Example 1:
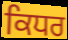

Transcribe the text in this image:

ਕਿਧਰ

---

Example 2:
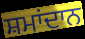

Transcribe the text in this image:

ਸ਼ਮਾਂਦਾਨ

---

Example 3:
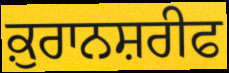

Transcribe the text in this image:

ਕ਼ੁਰਾਨਸ਼ਰੀਫ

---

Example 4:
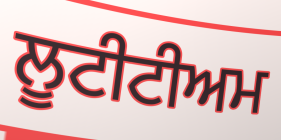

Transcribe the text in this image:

ਲੂਟੀਟੀਅਮ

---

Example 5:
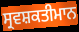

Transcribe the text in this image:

ਸ੍ਰਵਸ਼ਕਤੀਮਾਨ